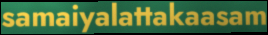
samaiyalattakaasam